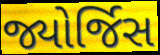
જ્યોર્જિસ